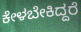
ಕೇಳಬೇಕಿದ್ದರೆ